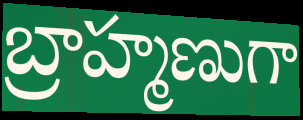
బ్రాహ్మణుగా